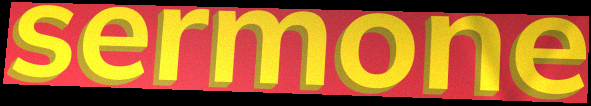
sermone